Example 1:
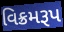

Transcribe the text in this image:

વિક્રમરૂપ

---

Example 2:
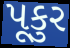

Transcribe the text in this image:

પૂકુર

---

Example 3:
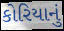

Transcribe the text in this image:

કોરિયાનું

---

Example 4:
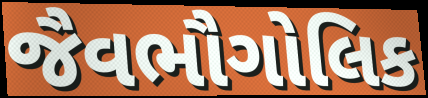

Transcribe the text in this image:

જૈવભૌગોલિક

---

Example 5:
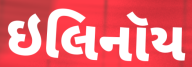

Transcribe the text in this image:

ઇલિનૉય